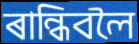
ৰান্ধিবলৈ